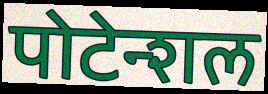
पोटेन्शल